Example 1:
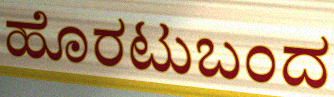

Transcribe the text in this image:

ಹೊರಟುಬಂದ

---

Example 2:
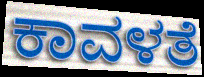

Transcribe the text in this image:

ಕಾವಳತೆ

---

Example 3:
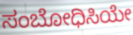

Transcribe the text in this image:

ಸಂಬೋಧಿಸಿಯೇ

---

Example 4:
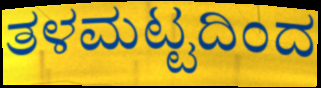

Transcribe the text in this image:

ತಳಮಟ್ಟದಿಂದ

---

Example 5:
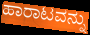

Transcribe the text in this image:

ಹಾರಾಟವನ್ನು